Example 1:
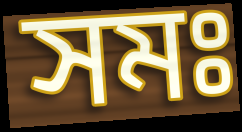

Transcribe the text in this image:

সমঃ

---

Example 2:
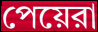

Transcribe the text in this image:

পেয়েরা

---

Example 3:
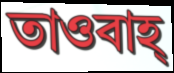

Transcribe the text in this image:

তাওবাহ্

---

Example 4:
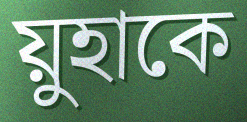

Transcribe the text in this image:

য়ুহাকে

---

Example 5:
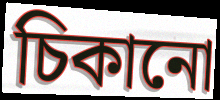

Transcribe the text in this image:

চিকানো